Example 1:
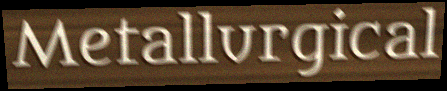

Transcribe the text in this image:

Metallurgical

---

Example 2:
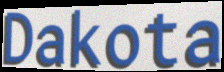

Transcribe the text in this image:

Dakota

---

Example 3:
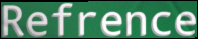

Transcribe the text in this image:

Refrence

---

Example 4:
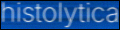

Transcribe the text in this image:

histolytica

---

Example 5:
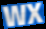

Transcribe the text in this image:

WX